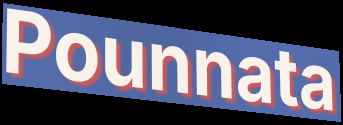
Pounnata